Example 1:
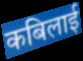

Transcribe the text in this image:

कबिलाई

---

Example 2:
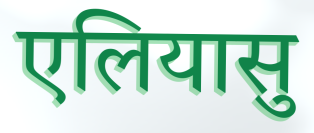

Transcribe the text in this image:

एलियासु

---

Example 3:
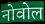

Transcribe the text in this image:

नोवोल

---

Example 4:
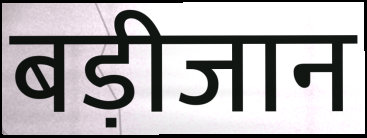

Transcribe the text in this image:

बड़ीजान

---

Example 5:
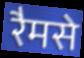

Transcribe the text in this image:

रैमसे